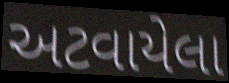
અટવાયેલા